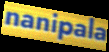
nanipala